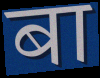
बा